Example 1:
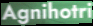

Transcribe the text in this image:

Agnihotri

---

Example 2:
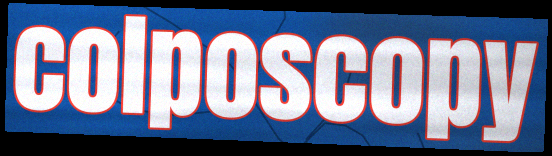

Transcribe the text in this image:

colposcopy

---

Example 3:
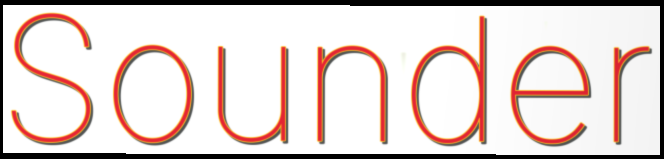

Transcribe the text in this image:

Sounder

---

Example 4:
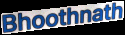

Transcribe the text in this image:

Bhoothnath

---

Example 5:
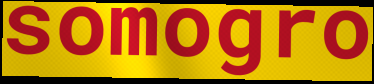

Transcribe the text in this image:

somogro